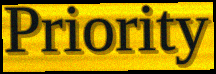
Priority